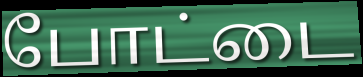
போட்டை